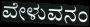
ವೇಳುವನಂ